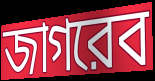
জাগরেব